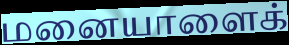
மனையாளைக்